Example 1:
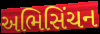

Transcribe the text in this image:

અભિસિંચન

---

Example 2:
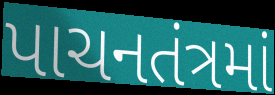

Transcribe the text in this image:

પાચનતંત્રમાં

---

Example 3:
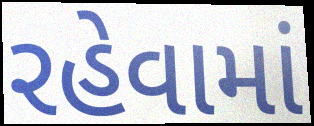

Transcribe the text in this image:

રહેવામાં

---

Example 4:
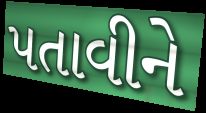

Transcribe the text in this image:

પતાવીને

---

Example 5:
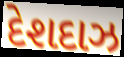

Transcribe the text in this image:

દેશદાઝ